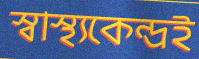
স্বাস্থ্যকেন্দ্ৰই